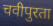
चवीपुरता